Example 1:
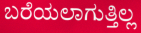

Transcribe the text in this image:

ಬರೆಯಲಾಗುತ್ತಿಲ್ಲ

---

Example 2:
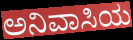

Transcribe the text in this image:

ಅನಿವಾಸಿಯ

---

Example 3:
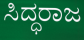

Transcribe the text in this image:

ಸಿದ್ಧರಾಜ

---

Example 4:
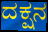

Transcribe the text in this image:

ದಕ್ಷನ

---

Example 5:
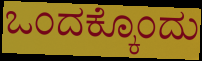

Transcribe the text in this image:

ಒಂದಕ್ಕೊಂದು